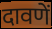
दावणें